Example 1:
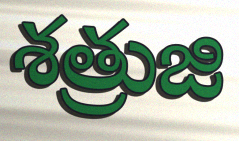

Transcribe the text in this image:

శత్రుజి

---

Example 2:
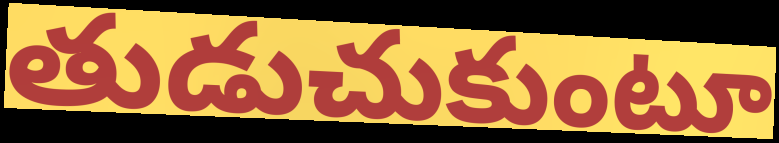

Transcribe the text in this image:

తుడుచుకుంటూ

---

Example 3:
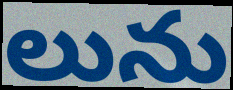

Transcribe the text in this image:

లును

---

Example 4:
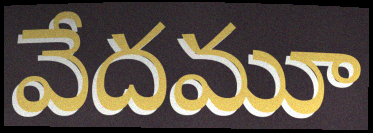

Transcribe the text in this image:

వేదమూ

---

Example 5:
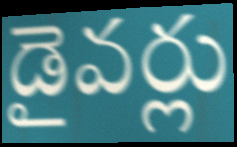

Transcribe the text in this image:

డైవర్లు